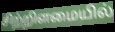
சிற்றிளமையில்